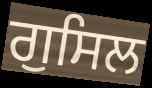
ਗੁਸਿਲ